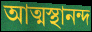
আত্মস্থানন্দ